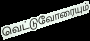
வெட்டுவோரையும்